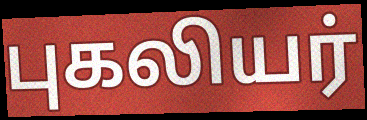
புகலியர்